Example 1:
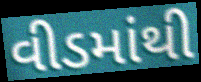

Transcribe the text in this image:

વીડમાંથી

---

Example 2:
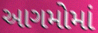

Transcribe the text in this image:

આગમોમાં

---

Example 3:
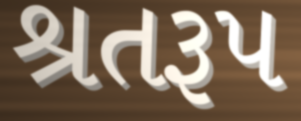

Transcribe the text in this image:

શ્રતરૂપ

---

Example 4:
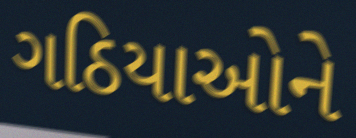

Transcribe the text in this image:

ગઠિયાઓને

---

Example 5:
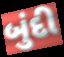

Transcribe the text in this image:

બુંદી